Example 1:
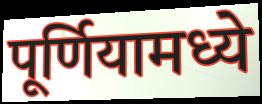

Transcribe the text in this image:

पूर्णियामध्ये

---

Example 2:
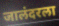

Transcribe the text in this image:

जालंदरला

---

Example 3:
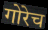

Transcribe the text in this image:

गोरेच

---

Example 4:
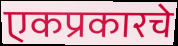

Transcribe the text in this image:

एकप्रकारचे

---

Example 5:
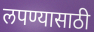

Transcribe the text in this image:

लपण्यासाठी